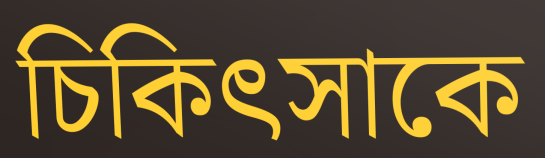
চিকিৎসাকে